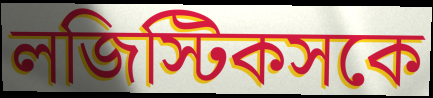
লজিস্টিকসকে